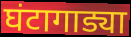
घंटागाड्या